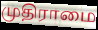
முதிராமை